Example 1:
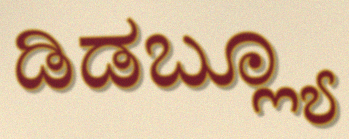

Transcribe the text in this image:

ಡಿಡಬ್ಲ್ಯೂ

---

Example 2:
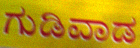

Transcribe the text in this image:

ಗುಡಿವಾಡ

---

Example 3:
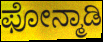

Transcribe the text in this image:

ಫೋನ್ಮಾಡಿ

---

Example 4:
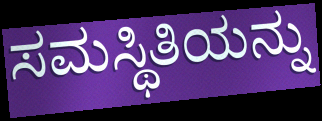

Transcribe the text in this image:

ಸಮಸ್ಥಿತಿಯನ್ನು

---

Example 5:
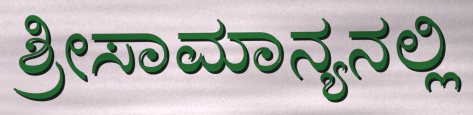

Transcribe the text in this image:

ಶ್ರೀಸಾಮಾನ್ಯನಲ್ಲಿ